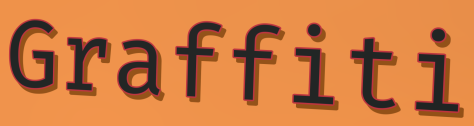
Graffiti